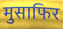
मुसाफिर